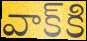
వాక్‌కి